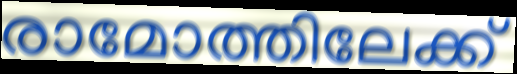
രാമോത്തിലേക്ക്